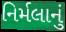
નિર્મલાનું